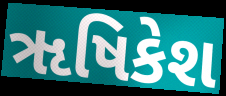
ૠષિકેશ